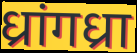
ध्रांगध्रा